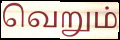
வெறும்